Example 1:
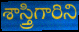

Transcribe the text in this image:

శాస్త్రిగారిని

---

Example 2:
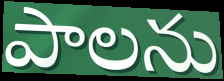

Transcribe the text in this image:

పాలను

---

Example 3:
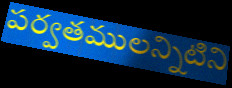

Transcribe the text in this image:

పర్వతములన్నిటిని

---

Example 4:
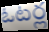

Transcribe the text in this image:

ఓటర్ల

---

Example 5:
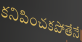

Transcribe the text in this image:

కనిపించకపోతేనే